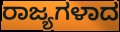
ರಾಜ್ಯಗಳಾದ